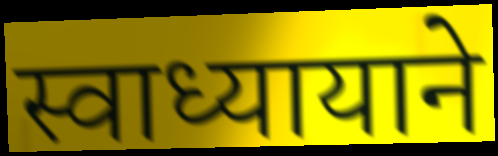
स्वाध्यायाने